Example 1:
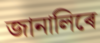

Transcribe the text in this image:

জানালিৰে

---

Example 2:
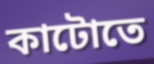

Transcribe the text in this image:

কাটোতে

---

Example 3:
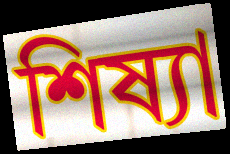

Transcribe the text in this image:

শিষ্যা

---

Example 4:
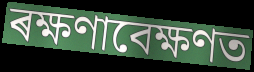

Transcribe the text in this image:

ৰক্ষণাবেক্ষণত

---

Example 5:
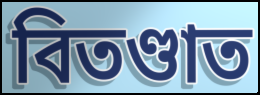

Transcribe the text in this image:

বিতণ্ডাত